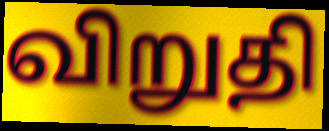
விறுதி